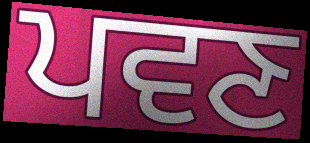
ਪਵਣ